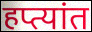
हप्त्यांत